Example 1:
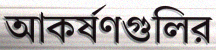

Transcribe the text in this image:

আকর্ষণগুলির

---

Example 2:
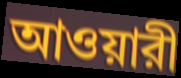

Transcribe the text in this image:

আওয়ারী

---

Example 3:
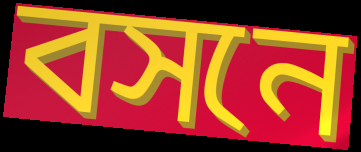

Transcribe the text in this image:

বসনে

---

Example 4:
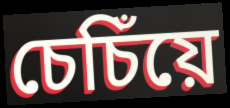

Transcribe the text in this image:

চেচিঁয়ে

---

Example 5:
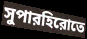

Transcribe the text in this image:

সুপারহিরোতে